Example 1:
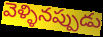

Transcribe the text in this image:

వెళ్ళినప్పుడు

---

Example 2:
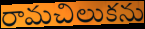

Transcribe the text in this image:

రామచిలుకను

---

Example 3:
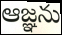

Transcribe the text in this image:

ఆజ్ఞను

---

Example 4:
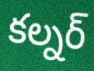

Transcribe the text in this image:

కల్నర్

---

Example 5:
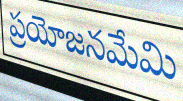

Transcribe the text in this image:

ప్రయోజనమేమి